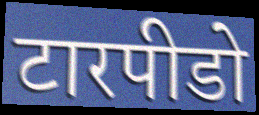
टारपीडो